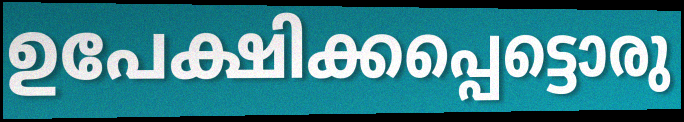
ഉപേക്ഷിക്കപ്പെട്ടൊരു